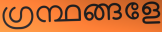
ഗ്രന്ഥങ്ങളേ